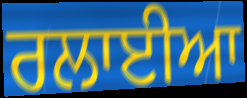
ਰਲਾਈਆ